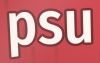
psu